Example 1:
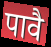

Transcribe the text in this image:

पावै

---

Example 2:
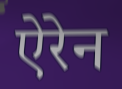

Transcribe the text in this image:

ऐरेन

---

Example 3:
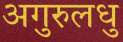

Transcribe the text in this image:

अगुरुलधु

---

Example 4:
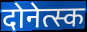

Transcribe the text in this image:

दोनेत्स्क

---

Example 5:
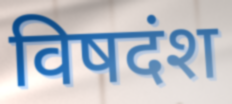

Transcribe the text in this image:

विषदंश